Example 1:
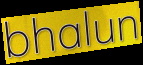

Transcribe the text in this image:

bhalun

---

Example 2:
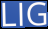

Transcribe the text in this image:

LIG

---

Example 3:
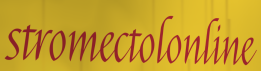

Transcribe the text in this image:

stromectolonline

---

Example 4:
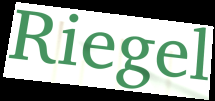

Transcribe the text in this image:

Riegel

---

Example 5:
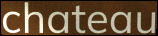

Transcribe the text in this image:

chateau